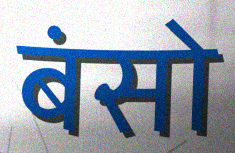
बंसो